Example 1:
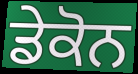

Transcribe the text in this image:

ਡੇਕੋਨ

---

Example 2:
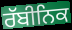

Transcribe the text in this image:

ਰੱਬੀਨਿਕ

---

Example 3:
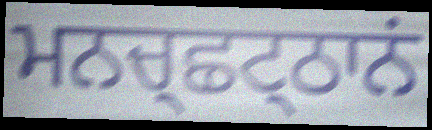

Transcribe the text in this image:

ਮਨਚ੍ਛਟ੍ਠਾਨਂ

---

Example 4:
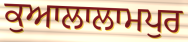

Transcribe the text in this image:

ਕੁਆਲਾਲਾਮਪੁਰ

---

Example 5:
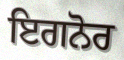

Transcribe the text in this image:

ਇਗਨੋਰ